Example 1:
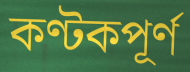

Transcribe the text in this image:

কণ্টকপূর্ণ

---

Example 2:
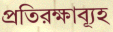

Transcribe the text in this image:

প্রতিরক্ষাব্যূহ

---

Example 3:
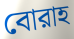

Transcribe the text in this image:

বোরাহ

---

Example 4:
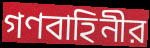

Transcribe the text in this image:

গণবাহিনীর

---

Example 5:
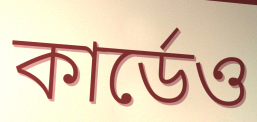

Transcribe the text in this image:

কার্ডেও